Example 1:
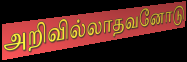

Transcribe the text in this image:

அறிவில்லாதவனோடு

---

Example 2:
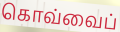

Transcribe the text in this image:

கொவ்வைப்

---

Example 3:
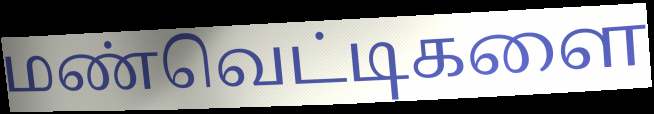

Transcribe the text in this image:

மண்வெட்டிகளை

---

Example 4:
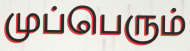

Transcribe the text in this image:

முப்பெரும்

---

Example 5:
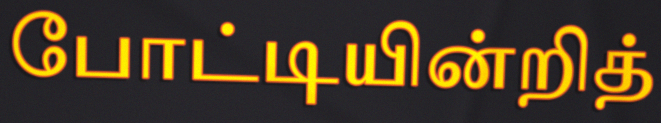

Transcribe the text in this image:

போட்டியின்றித்